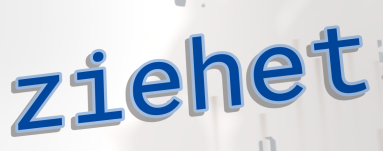
ziehet